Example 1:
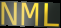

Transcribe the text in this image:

NML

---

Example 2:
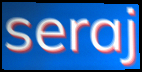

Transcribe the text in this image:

seraj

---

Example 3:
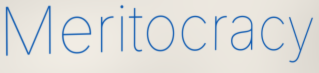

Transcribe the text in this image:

Meritocracy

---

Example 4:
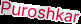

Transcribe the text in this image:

Puroshkar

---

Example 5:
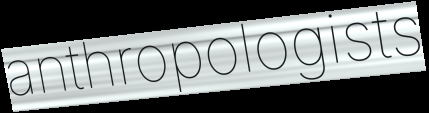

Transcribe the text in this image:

anthropologists